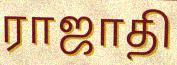
ராஜாதி